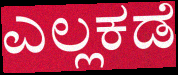
ಎಲ್ಲಕಡೆ